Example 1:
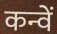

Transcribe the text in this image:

कन्वें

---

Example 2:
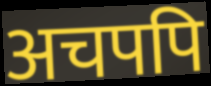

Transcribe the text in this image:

अचपपि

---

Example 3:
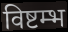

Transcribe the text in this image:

विष्टम्भ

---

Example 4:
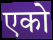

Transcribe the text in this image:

एको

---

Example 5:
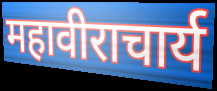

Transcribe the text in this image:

महावीराचार्य